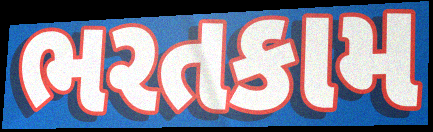
ભરતકામ